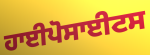
ਹਾਈਪੋਸਾਈਟਸ